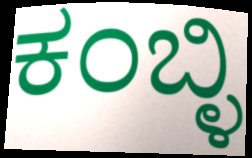
ಕಂಬ್ಳಿ